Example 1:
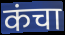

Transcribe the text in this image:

कंचा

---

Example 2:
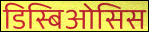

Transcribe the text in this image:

डिस्बिओसिस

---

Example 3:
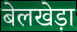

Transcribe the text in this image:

बेलखेड़ा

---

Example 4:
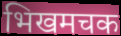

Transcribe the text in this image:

भिखमचक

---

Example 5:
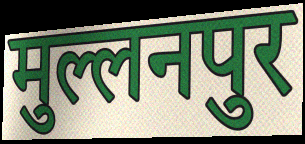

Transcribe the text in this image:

मुल्लनपुर